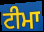
ਟੀਮਾ